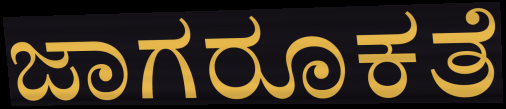
ಜಾಗರೂಕತೆ